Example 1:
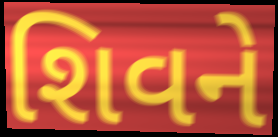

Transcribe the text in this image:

શિવને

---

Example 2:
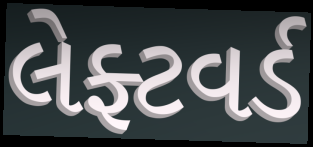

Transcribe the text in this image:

લેફ્ટવર્ડ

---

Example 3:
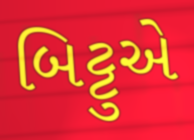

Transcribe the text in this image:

બિટ્ટુએ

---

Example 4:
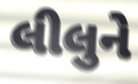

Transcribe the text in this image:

લીલુને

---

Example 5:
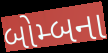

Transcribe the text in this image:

બોમ્બના